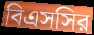
বিএসসির